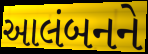
આલંબનને